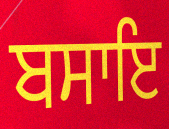
ਬਸਾਇ